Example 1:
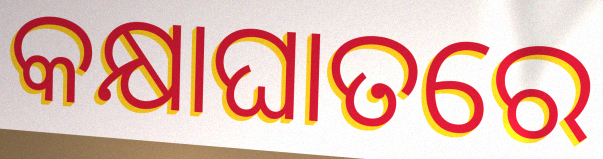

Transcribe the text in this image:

କକ୍ଷାଘାତରେ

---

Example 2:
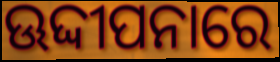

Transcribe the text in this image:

ଊଦ୍ଦୀପନାରେ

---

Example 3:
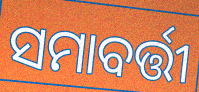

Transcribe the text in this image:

ସମାବର୍ତ୍ତୀ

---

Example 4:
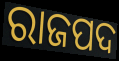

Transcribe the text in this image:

ରାଜପଦ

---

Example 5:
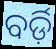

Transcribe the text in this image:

ବର୍ଡ଼ି